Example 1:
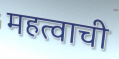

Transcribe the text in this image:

महत्वाची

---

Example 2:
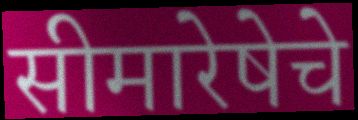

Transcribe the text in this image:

सीमारेषेचे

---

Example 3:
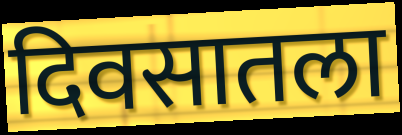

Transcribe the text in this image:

दिवसातला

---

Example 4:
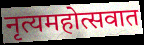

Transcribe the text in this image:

नृत्यमहोत्सवात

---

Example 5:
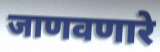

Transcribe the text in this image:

जाणवणारे